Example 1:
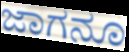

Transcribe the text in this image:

ಜಾಗನೂ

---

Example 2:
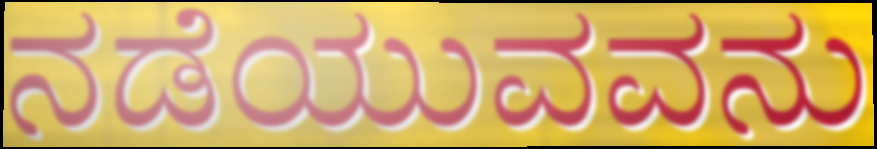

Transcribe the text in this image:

ನಡೆಯುವವನು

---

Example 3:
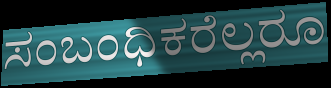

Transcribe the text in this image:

ಸಂಬಂಧಿಕರೆಲ್ಲರೂ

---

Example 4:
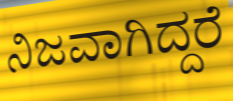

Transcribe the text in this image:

ನಿಜವಾಗಿದ್ದರೆ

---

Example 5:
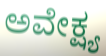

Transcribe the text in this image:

ಅವೇಕ್ಷ್ಯ